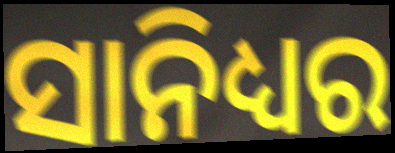
ସାନିଧ୍ୟର